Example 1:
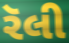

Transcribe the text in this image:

રૅલી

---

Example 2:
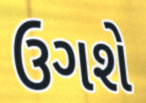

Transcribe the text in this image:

ઉગશે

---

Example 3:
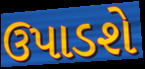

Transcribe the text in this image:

ઉપાડશે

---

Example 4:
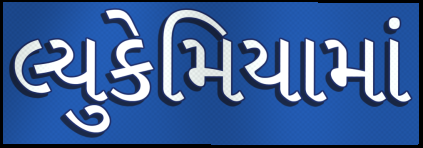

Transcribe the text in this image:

લ્યુકેમિયામાં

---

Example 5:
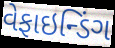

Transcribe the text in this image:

વેફાઇન્ડિંગ